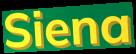
Siena